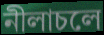
নীলাচলে